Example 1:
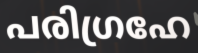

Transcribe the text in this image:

പരിഗ്രഹേ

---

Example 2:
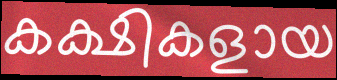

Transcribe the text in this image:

കക്ഷികളായ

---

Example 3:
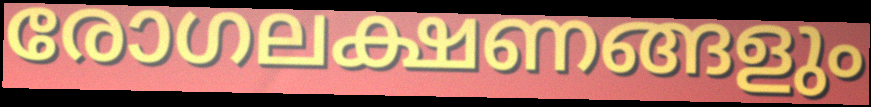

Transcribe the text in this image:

രോഗലക്ഷണങ്ങളും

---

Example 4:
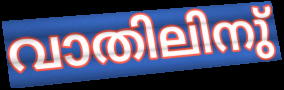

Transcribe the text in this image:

വാതിലിനു്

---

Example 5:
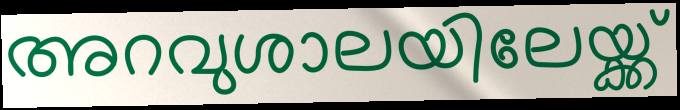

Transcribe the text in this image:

അറവുശാലയിലേയ്ക്ക്